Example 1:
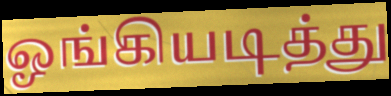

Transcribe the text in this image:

ஓங்கியடித்து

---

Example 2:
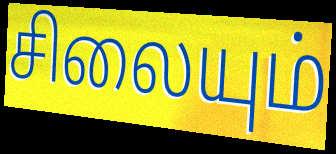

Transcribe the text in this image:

சிலையும்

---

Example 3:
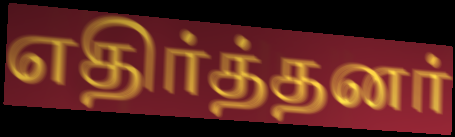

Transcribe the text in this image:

எதிர்த்தனர்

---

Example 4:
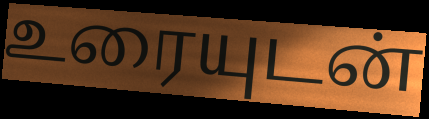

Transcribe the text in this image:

உரையுடன்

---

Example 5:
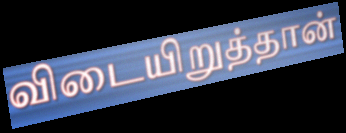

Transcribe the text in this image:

விடையிறுத்தான்